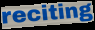
reciting